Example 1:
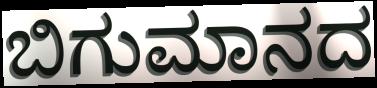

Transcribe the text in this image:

ಬಿಗುಮಾನದ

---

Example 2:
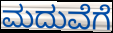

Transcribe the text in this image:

ಮದುವೆಗೆ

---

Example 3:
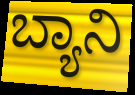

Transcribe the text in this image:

ಬ್ಯಾನಿ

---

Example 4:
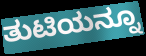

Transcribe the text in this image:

ತುಟಿಯನ್ನೂ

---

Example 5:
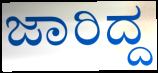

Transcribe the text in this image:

ಜಾರಿದ್ದ